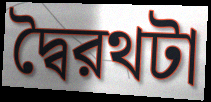
দ্বৈরথটা